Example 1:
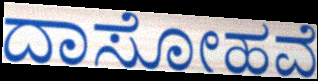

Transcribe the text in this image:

ದಾಸೋಹವೆ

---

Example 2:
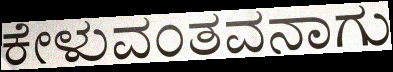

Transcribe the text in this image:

ಕೇಳುವಂತವನಾಗು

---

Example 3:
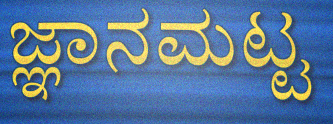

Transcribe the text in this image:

ಜ್ಞಾನಮಟ್ಟ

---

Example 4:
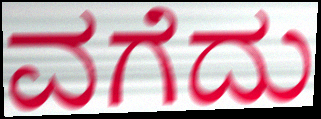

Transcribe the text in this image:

ವಗೆದು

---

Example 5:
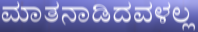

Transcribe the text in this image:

ಮಾತನಾಡಿದವಳಲ್ಲ